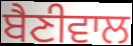
ਬੈਣੀਵਾਲ